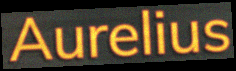
Aurelius